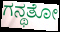
ಗನ್ಥತೋ